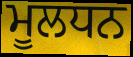
ਮੂਲਧਨ